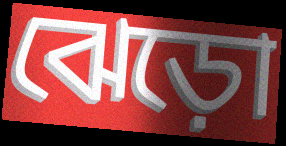
ঝেড়ো